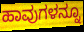
ಹಾವುಗಳನ್ನೂ